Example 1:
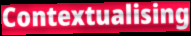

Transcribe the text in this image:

Contextualising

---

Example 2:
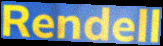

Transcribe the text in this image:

Rendell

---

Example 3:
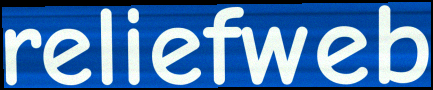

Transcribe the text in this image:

reliefweb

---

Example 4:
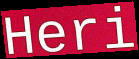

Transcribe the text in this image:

Heri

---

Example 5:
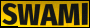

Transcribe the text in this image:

SWAMI